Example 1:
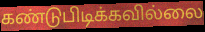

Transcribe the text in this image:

கண்டுபிடிக்கவில்லை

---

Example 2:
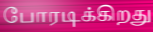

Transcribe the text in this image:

போரடிக்கிறது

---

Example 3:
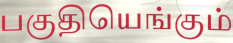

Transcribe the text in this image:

பகுதியெங்கும்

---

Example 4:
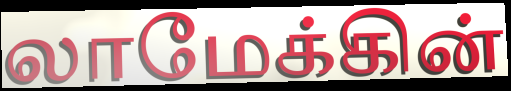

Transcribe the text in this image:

லாமேக்கின்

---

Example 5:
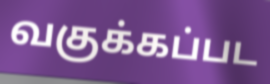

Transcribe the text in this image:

வகுக்கப்பட